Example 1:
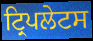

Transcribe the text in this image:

ਟ੍ਰਿਪਲੇਟਸ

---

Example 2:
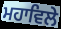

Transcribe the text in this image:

ਮਹਾਵਿਲੇ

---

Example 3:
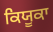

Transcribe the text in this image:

ਕਿਯੂਕਾ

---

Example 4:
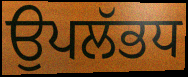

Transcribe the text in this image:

ਉਪਲੱਭਧ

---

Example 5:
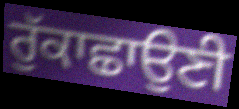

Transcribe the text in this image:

ਰੁੱਕਾਛਾਉਣੀ